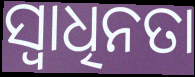
ସ୍ୱାଧିନତା